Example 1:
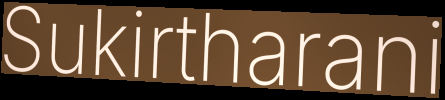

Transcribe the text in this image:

Sukirtharani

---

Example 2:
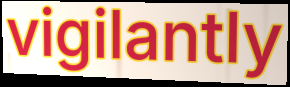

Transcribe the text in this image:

vigilantly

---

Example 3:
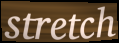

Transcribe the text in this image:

stretch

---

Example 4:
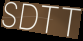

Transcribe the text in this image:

SDTT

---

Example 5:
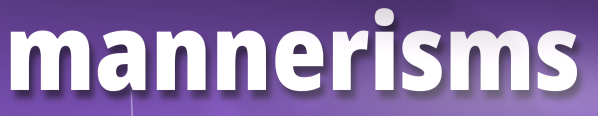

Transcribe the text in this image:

mannerisms